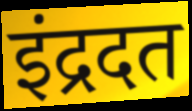
इंद्रदत